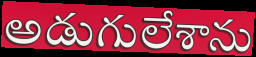
అడుగులేశాను